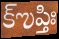
క్ఌప్తిః